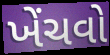
ખેંચવો